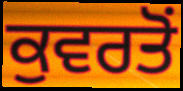
ਕੁਵਰਤੋਂ